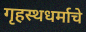
गृहस्थधर्माचे